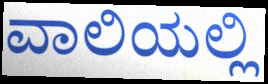
ವಾಲಿಯಲ್ಲಿ